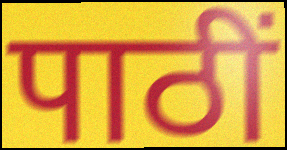
पाठीं